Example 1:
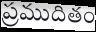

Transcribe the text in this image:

ప్రముదితం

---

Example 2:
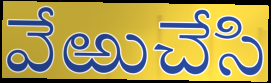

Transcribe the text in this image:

వేఱుచేసి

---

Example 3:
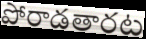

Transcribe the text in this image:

పోరాడతారట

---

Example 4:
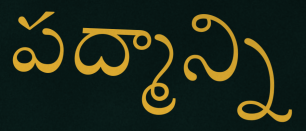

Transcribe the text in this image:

పద్మాన్ని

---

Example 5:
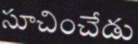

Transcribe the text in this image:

సూచించేడు